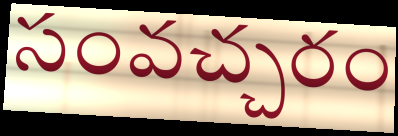
సంవచ్చరం